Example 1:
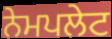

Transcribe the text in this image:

ਨੇਮਪਲੇਟ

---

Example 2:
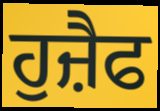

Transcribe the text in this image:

ਹੁਜ਼ੈਫ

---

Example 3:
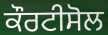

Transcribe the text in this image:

ਕੌਰਟੀਸੋਲ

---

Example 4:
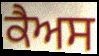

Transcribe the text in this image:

ਕੈਅਸ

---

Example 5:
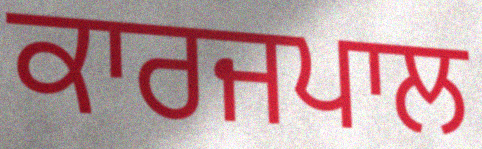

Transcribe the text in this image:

ਕਾਰਜਪਾਲ